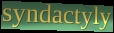
syndactyly